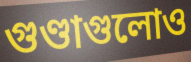
গুণ্ডাগুলোও